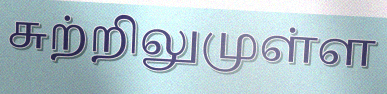
சுற்றிலுமுள்ள